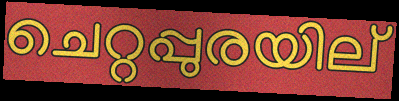
ചെറ്റപ്പുരയില്